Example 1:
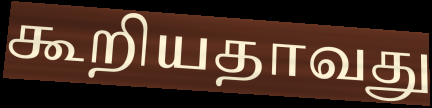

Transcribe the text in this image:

கூறியதாவது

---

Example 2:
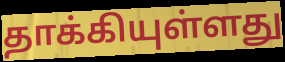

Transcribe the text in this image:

தாக்கியுள்ளது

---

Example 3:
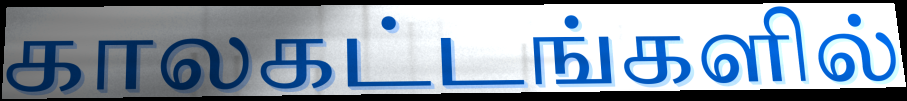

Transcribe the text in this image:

காலகட்டங்களில்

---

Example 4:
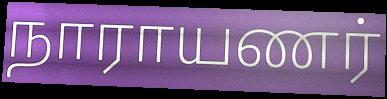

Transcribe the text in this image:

நாராயணர்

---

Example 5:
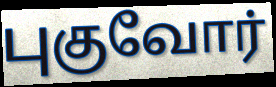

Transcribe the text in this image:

புகுவோர்